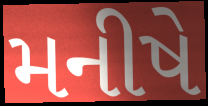
મનીષે